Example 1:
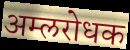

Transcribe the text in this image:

अम्लरोधक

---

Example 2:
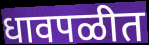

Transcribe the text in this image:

धावपळीत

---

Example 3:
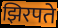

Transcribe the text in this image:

झिरपते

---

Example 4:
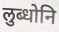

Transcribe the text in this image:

लुब्धोनि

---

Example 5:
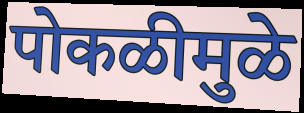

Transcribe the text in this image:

पोकळीमुळे